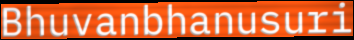
Bhuvanbhanusuri